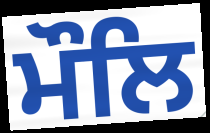
ਮੌਲਿ